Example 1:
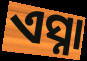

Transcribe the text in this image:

ଏସ୍ନା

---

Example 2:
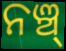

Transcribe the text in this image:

ନଞ୍ଚ୍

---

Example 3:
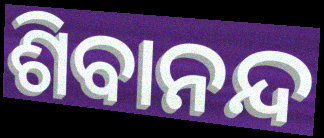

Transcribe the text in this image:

ଶିବାନନ୍ଦ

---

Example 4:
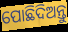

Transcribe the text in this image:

ପୋଛିଦିଅନ୍ତୁ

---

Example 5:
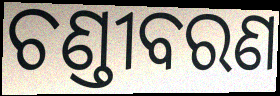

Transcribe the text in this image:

ଚଣ୍ଡୀବରଣ